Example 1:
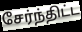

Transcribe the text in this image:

சேர்ந்திட்ட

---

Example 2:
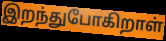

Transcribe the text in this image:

இறந்துபோகிறாள்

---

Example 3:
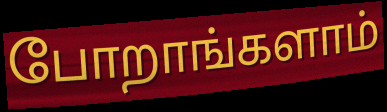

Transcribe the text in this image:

போறாங்களாம்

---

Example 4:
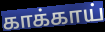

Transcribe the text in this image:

காக்காய்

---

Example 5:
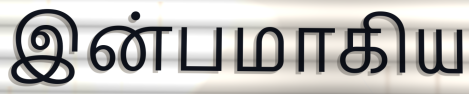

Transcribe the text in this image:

இன்பமாகிய